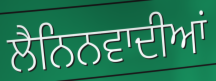
ਲੈਨਿਨਵਾਦੀਆਂ